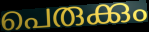
പെരുക്കും